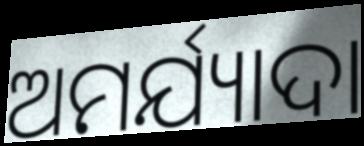
ଅମର୍ଯ୍ୟାଦା